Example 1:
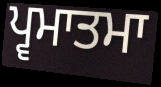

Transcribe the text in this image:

ਪ੍ਵਮਾਤਮਾ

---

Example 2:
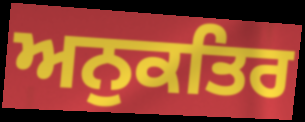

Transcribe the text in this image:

ਅਨੁਕਤਿਰ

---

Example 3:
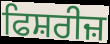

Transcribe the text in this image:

ਫਿਸ਼ਰੀਜ਼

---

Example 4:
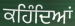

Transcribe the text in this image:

ਕਹਿੰਦਿਆਂ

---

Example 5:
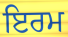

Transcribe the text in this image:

ਇਰਮ